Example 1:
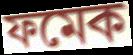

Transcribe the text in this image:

ফমেক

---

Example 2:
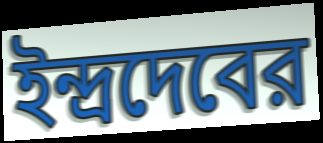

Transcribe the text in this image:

ইন্দ্রদেবের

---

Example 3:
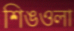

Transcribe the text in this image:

শিঙওলা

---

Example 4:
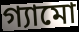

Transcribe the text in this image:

গ্যামো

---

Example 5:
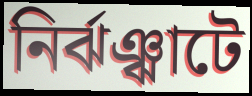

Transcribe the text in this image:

নির্ঝঞ্ঝাটে